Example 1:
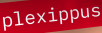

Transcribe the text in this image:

plexippus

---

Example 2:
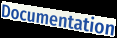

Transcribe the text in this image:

Documentation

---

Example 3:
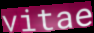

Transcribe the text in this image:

vitae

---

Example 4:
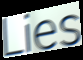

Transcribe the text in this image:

Lies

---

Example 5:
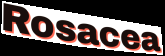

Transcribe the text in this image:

Rosacea